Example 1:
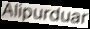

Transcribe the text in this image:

Alipurduar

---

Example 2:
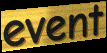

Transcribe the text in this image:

event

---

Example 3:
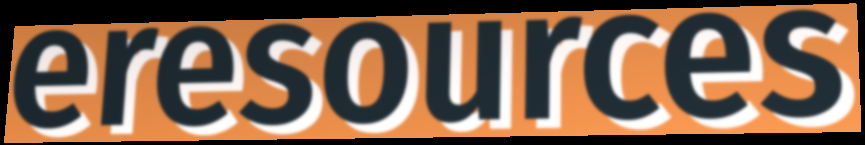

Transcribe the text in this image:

eresources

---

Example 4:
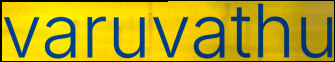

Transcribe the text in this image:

varuvathu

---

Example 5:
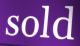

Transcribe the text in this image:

sold